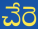
చేరె